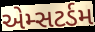
એમ્સટર્ડમ